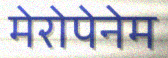
मेरोपेनेम